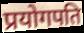
प्रयोगपति